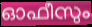
ഓഫീസും